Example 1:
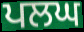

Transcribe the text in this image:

ਪਲਘ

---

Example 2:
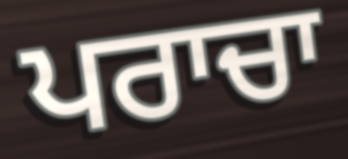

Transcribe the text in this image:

ਪਰਾਚਾ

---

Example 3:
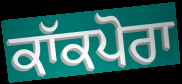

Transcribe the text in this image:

ਕਾੱਕਪੋਰਾ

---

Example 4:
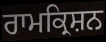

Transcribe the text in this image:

ਰਾਮਕ੍ਰਿਸ਼ਨ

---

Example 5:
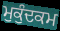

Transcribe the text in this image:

ਮੁਕੁੰਦਕਮ